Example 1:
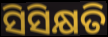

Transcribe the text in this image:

ସିସିକ୍ଷତି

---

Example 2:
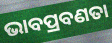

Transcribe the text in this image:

ଭାବପ୍ରବଣତା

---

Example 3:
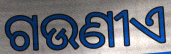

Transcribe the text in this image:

ଗଉଣୀଏ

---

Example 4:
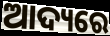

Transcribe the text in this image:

ଆଦ୍ୟରେ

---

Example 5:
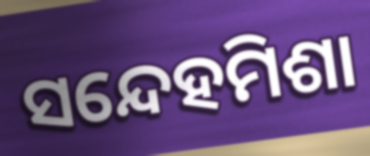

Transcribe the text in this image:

ସନ୍ଦେହମିଶା